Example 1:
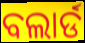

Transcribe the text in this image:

ବଲାର୍ଡ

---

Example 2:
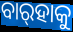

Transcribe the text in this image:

ବାର୍‍ହାକୁ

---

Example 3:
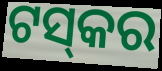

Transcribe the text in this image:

ଟସ୍‍କର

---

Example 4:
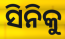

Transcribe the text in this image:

ସିନିକୁ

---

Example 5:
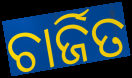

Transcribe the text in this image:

ଚାର୍ଜିତ